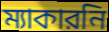
ম্যাকারনি